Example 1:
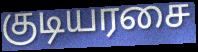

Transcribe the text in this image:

குடியரசை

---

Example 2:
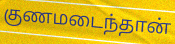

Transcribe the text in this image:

குணமடைந்தான்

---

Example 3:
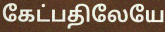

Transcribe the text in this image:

கேட்பதிலேயே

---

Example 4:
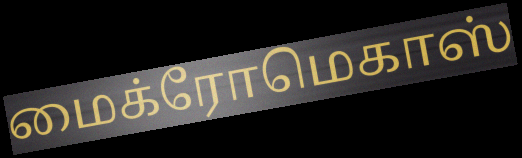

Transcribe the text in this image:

மைக்ரோமெகாஸ்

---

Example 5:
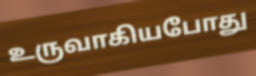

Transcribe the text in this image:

உருவாகியபோது